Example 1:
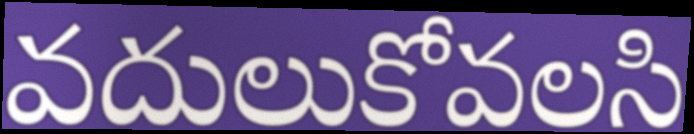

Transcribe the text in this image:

వదులుకోవలసి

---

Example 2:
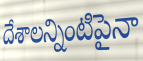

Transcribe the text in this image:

దేశాలన్నింటిపైనా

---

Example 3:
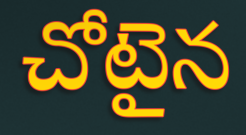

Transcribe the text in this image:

చోటైన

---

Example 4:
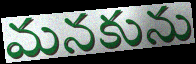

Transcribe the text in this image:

మనకును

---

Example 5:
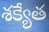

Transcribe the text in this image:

శక్యేత